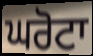
ਘਰੋਟਾ